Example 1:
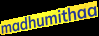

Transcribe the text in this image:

madhumithaa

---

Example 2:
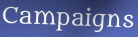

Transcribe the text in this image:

Campaigns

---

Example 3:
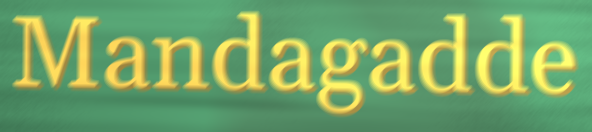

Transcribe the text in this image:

Mandagadde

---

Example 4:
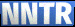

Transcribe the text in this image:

NNTR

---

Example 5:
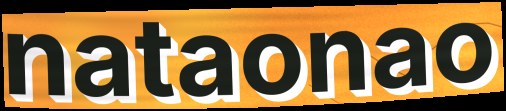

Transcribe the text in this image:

nataonao